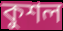
কুশল